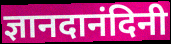
ज्ञानदानंदिनी